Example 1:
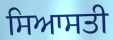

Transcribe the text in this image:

ਸਿਆਸਤੀ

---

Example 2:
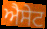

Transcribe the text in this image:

ਐਸੇਟ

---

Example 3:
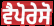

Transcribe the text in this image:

ਵੈਪੋਰੇਸੋ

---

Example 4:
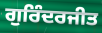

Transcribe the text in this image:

ਗੁਰਿੰਦਰਜੀਤ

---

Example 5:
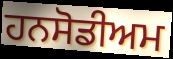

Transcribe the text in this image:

ਹਨਸੋਡੀਅਮ